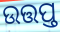
ଉତ୍ତପ୍ତ